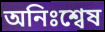
অনিঃশ্বেষ